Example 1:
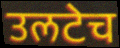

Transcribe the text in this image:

उलटेच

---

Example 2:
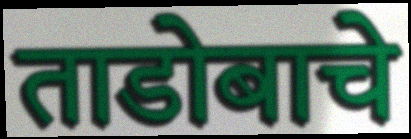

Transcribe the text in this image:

ताडोबाचे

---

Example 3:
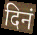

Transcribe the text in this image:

दिनं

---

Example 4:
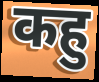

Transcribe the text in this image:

कहु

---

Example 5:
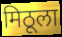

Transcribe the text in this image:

मिठूला